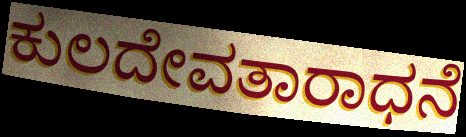
ಕುಲದೇವತಾರಾಧನೆ